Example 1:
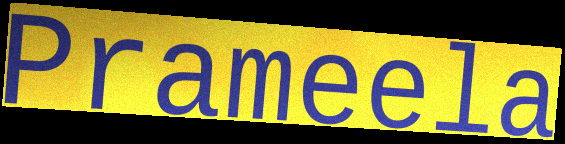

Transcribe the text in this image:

Prameela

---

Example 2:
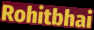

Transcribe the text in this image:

Rohitbhai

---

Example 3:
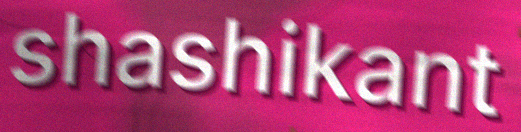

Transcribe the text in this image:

shashikant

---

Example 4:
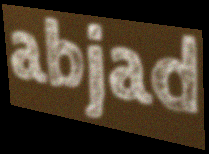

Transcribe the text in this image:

abjad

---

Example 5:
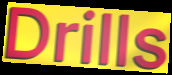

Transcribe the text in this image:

Drills